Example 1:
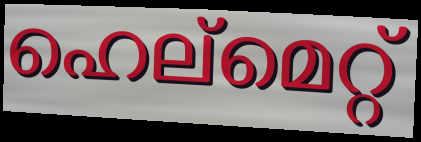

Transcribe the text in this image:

ഹെല്മെറ്റ്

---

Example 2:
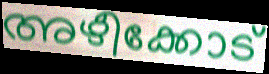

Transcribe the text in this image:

അഴീക്കോട്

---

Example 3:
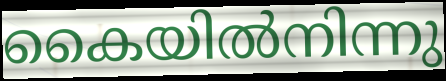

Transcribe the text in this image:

കൈയിൽനിന്നു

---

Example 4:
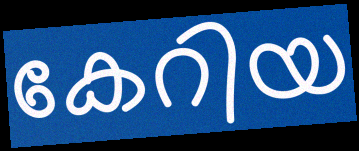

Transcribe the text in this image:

കേറിയ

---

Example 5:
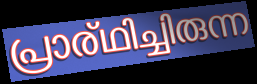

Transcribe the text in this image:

പ്രാര്ഥിച്ചിരുന്ന